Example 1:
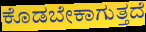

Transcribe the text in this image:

ಕೊಡಬೇಕಾಗುತ್ತದೆ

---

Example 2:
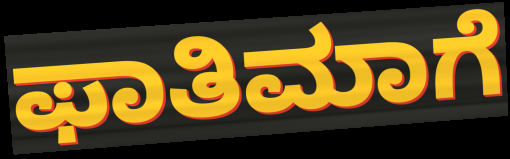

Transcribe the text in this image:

ಫಾತಿಮಾಗೆ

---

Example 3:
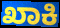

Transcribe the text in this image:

ಖಾಕಿ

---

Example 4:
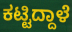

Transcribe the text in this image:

ಕಟ್ಟಿದ್ದಾಳೆ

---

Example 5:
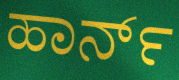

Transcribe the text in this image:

ಹಾರ್ನ್